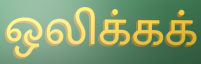
ஒலிக்கக்